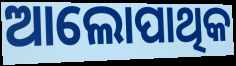
ଆଲୋପାଥିକ